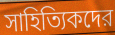
সাহিত্যিকদের